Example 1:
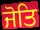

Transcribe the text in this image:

ਜੋਤਿ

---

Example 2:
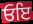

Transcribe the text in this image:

ਓਇ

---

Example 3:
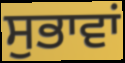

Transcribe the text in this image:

ਸੁਭਾਵਾਂ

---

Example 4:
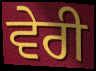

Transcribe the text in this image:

ਵੇਰੀ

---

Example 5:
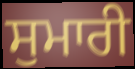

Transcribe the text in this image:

ਸੁਮਾਰੀ